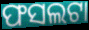
ଫସଲଟା